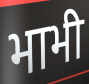
भाभी